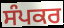
ਸੰਪਕਰ